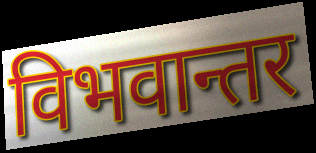
विभवान्तर